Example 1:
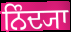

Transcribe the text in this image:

ਨਿੰਦ੍ਯਾ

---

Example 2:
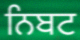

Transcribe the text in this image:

ਨਿਬਟ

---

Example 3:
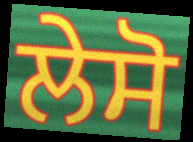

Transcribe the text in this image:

ਲੇਸੋ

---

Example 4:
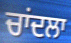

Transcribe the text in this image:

ਚਾਂਦਲਾ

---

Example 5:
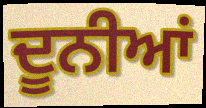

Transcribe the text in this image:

ਦੂਨੀਆਂ